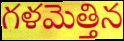
గళమెత్తిన